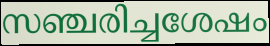
സഞ്ചരിച്ചശേഷം